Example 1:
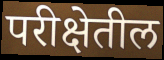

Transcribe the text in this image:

परीक्षेतील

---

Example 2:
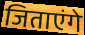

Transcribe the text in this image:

जिताएंगे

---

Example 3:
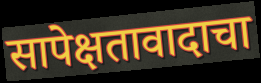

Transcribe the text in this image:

सापेक्षतावादाचा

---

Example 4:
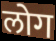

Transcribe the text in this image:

लोग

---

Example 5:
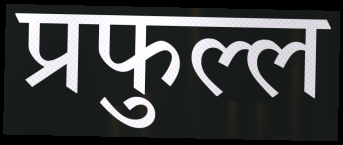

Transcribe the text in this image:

प्रफुल्ल